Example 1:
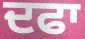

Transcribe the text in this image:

ਦਫਾ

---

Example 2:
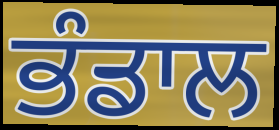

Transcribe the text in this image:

ਭੰਡਾਲ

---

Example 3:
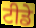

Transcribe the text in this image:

ਟੀਡੇ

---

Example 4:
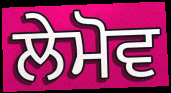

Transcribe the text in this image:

ਲੇਮੋਵ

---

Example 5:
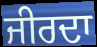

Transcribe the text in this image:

ਜੀਰਦਾ